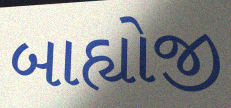
બાહ્યોજી